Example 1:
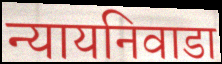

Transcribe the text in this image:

न्यायनिवाडा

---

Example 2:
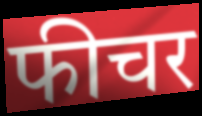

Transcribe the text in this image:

फीचर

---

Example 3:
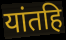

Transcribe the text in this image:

यांतहि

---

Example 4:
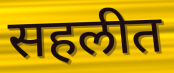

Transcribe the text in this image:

सहलीत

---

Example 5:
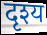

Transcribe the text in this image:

दृश्य